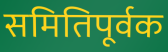
समितिपूर्वक